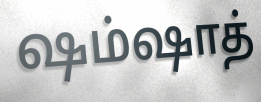
ஷம்ஷாத்